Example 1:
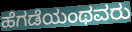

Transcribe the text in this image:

ಹೆಗಡೆಯಂಥವರು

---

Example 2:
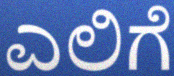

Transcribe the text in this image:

ಎಲಿಗೆ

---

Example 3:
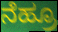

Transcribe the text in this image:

ನೆಹ್ರೂ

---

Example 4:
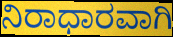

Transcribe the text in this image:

ನಿರಾಧಾರವಾಗಿ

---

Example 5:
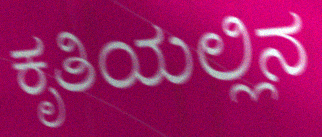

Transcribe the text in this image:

ಕೃತಿಯಲ್ಲಿನ